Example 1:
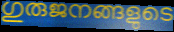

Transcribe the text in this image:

ഗുരുജനങ്ങളുടെ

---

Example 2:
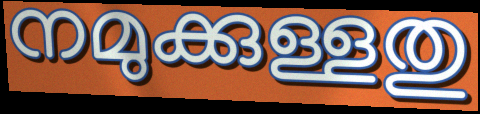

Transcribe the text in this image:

നമുക്കുള്ളതു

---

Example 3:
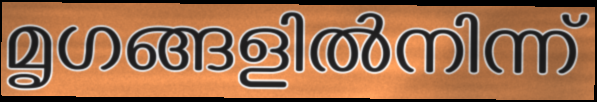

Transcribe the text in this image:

മൃഗങ്ങളിൽനിന്ന്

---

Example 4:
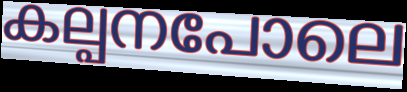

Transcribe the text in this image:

കല്പനപോലെ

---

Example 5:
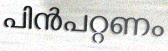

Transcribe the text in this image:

പിൻപറ്റണം